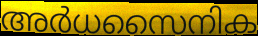
അർധസൈനിക